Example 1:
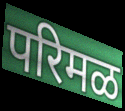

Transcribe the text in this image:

परिमळ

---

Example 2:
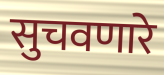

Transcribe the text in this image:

सुचवणारे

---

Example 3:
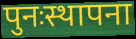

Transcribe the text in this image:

पुनःस्थापना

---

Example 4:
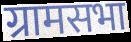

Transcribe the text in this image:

ग्रामसभा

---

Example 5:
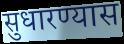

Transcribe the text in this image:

सुधारण्यास